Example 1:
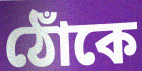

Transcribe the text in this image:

ঠোঁকে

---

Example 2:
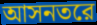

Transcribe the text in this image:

আসনতরে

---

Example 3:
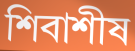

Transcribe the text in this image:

শিবাশীষ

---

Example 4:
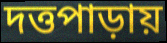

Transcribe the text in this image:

দত্তপাড়ায়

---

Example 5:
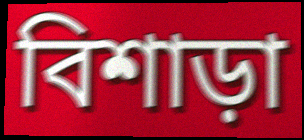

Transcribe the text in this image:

বিশাড়া